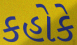
કહોકે